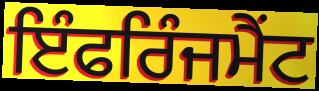
ਇੰਫਰਿੰਜਮੈਂਟ